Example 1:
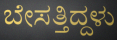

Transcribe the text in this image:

ಬೇಸತ್ತಿದ್ದಳು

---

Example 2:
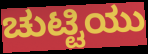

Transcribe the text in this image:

ಚುಟ್ಟಿಯು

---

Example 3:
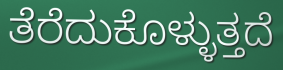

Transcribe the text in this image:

ತೆರೆದುಕೊಳ್ಳುತ್ತದೆ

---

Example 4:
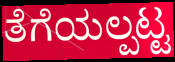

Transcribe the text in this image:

ತೆಗೆಯಲ್ಪಟ್ಟ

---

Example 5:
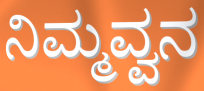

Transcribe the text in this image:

ನಿಮ್ಮವ್ವನ